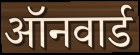
ऑनवार्ड